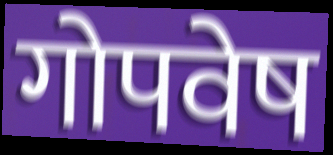
गोपवेष